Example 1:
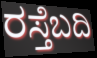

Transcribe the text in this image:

ರಸ್ತೆಬದಿ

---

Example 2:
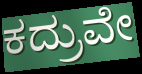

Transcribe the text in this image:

ಕದ್ರುವೇ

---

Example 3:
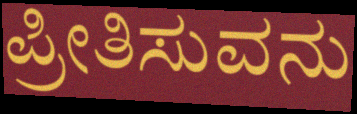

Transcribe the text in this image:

ಪ್ರೀತಿಸುವನು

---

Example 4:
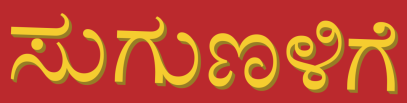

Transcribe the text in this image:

ಸುಗುಣಳಿಗೆ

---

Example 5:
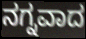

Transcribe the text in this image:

ನಗ್ನವಾದ